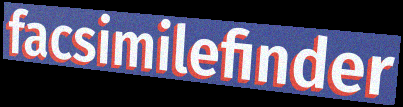
facsimilefinder